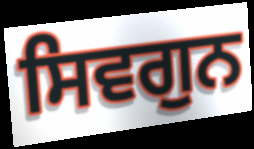
ਸਿਵਗੁਨ